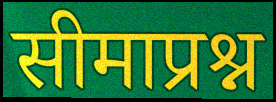
सीमाप्रश्न